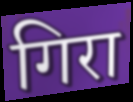
गिरा